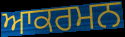
ਆਕਰਮਨ